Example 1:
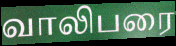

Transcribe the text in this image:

வாலிபரை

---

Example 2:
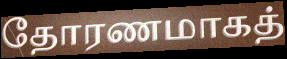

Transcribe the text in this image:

தோரணமாகத்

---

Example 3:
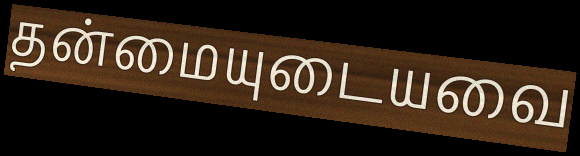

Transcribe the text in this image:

தன்மையுடையவை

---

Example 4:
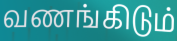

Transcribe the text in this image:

வணங்கிடும்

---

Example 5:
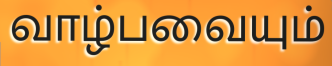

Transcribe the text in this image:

வாழ்பவையும்